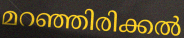
മറഞ്ഞിരിക്കൽ